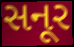
સનૂર